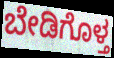
ಬೇಡಿಗೊಳ್ತ